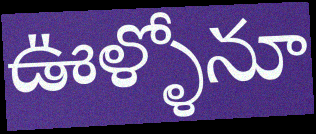
ఊళ్ళోనూ